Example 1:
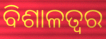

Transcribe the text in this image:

ବିଶାଳତ୍ୱର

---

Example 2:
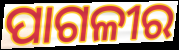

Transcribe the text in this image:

ପାଗଳୀର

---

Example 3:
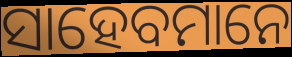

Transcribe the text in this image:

ସାହେବମାନେ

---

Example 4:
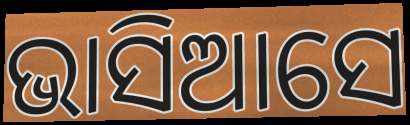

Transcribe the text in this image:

ଭାସିଆସେ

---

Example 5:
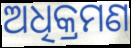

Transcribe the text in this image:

ଅଧିକ୍ରମଣ